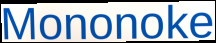
Mononoke